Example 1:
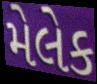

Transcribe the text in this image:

મેલેક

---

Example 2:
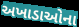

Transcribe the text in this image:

અખાડાઓના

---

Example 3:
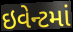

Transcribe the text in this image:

ઇવેન્ટમાં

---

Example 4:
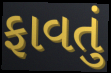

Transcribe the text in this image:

ફાવતું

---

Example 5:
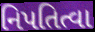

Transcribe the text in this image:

નિપતિત્વા